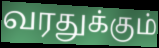
வரதுக்கும்